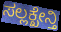
ಸಲ್ಲಕ್ಖೇನ್ತಿ